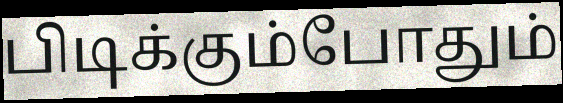
பிடிக்கும்போதும்